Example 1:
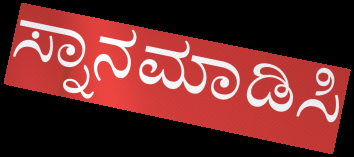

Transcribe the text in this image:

ಸ್ನಾನಮಾಡಿಸಿ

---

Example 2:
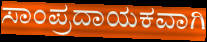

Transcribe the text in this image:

ಸಾಂಪ್ರದಾಯಕವಾಗಿ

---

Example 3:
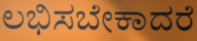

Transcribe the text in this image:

ಲಭಿಸಬೇಕಾದರೆ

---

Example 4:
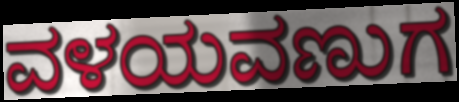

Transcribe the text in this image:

ವಳಯವಣುಗ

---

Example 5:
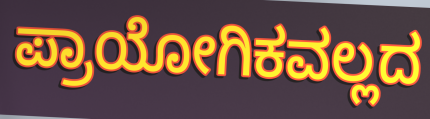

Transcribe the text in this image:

ಪ್ರಾಯೋಗಿಕವಲ್ಲದ